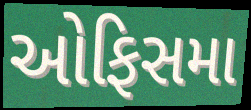
ઓફિસમા